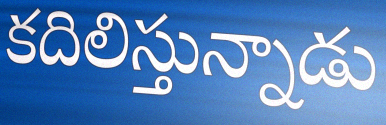
కదిలిస్తున్నాడు